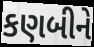
કણબીને